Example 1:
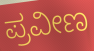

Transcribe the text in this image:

ಪ್ರವೀಣ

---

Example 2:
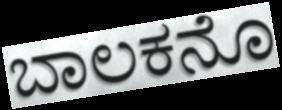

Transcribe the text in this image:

ಬಾಲಕನೊ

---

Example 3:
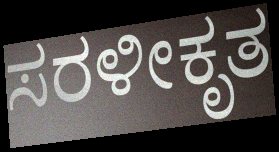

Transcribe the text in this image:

ಸರಳೀಕೃತ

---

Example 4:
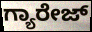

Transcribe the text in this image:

ಗ್ಯಾರೇಜ್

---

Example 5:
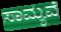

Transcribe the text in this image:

ಸಾಮ್ಯವೆ